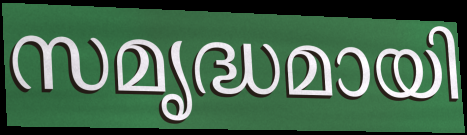
സമൃദ്ധമായി